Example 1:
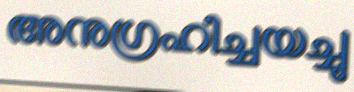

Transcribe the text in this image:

അനുഗ്രഹിച്ചയച്ചു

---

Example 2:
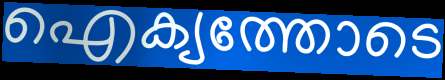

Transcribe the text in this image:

ഐക്യത്തോടെ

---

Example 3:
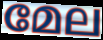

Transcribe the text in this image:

മേല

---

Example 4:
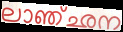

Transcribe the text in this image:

ലാഞ്ഛന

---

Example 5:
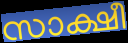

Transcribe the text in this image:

സാക്ഷീ